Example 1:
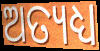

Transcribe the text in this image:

ଅତ୍ୟଧ୍ୟ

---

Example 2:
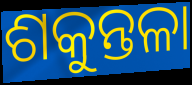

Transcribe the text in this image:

ଶକୁନ୍ତଳା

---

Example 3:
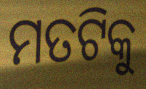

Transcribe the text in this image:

ମତଟିକୁ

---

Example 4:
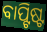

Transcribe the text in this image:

ବାପ୍ଟିଷ୍ଟ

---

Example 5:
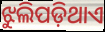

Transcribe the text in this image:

ଝୁଲିପଡ଼ିଥାଏ